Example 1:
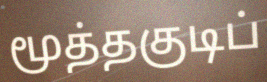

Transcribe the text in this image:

மூத்தகுடிப்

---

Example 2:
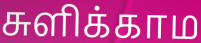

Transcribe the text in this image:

சுளிக்காம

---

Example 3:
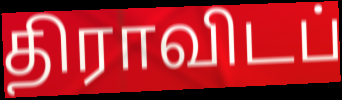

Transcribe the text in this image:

திராவிடப்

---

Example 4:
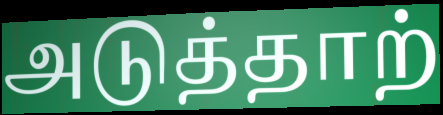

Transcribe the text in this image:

அடுத்தாற்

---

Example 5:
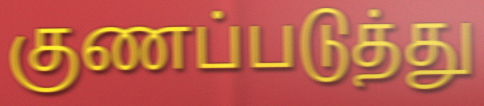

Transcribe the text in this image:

குணப்படுத்து